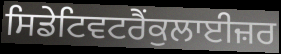
ਸਿਡੇਟਿਵਟਰੈਂਕੁਲਾਈਜ਼ਰ